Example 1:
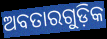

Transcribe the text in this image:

ଅବତାରଗୁଡ଼ିକ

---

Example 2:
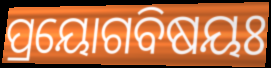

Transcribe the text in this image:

ପ୍ରୟୋଗବିଷୟଃ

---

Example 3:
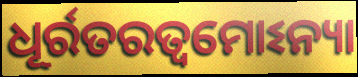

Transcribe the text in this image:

ଧୂର୍ରତରତ୍ୱମୋଽନ୍ୟା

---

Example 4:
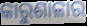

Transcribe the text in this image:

କାରୁଶାଳାର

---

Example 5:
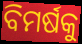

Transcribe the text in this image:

ବିମର୍ଷକୁ